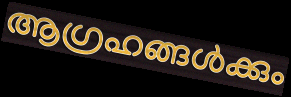
ആഗ്രഹങ്ങൾക്കും